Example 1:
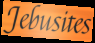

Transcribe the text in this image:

Jebusites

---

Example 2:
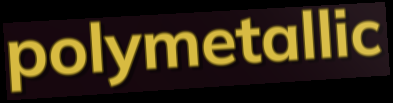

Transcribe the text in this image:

polymetallic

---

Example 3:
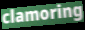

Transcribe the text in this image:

clamoring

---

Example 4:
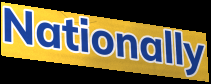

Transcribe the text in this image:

Nationally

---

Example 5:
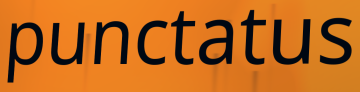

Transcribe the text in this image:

punctatus